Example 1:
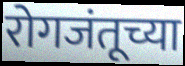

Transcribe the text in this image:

रोगजंतूच्या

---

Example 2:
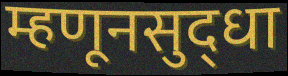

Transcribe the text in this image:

म्हणूनसुद्धा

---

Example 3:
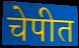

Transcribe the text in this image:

चेपीत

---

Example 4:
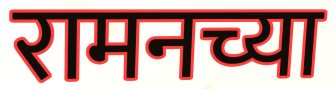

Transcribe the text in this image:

रामनच्या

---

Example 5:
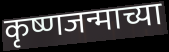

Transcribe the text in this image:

कृष्णजन्माच्या